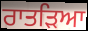
ਰਾਤੜਿਆ